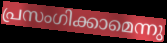
പ്രസംഗിക്കാമെന്നു